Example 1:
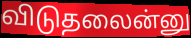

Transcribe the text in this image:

விடுதலைன்னு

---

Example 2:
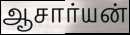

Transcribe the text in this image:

ஆசார்யன்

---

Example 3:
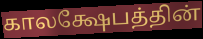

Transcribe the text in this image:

காலக்ஷேபத்தின்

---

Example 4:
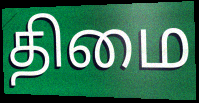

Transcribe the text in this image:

திமை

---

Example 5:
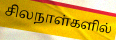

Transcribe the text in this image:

சிலநாள்களில்